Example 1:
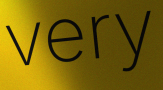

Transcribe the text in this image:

very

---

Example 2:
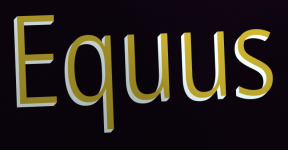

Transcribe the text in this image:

Equus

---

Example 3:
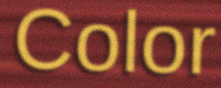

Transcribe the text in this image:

Color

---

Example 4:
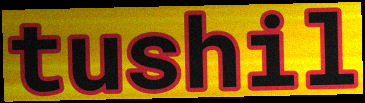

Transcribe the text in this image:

tushil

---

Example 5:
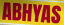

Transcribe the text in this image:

ABHYAS